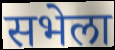
सभेला